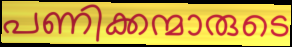
പണിക്കന്മാരുടെ